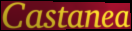
Castanea